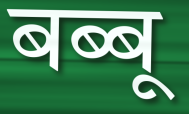
बब्बू